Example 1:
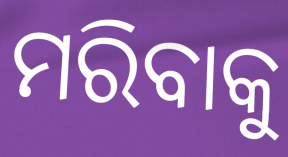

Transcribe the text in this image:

ମରିବାକୁ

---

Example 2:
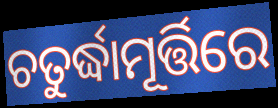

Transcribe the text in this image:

ଚତୁର୍ଦ୍ଧାମୂର୍ତ୍ତିରେ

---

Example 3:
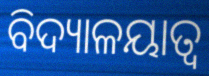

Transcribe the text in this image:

ବିଦ୍ୟାଳୟାତ୍ବ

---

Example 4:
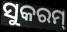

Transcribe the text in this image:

ସୁକରମ୍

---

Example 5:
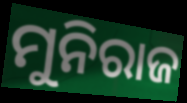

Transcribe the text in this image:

ମୁନିରାଜ